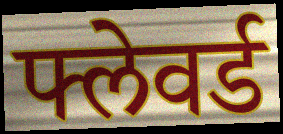
फ्लेवर्ड